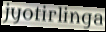
jyotirlinga